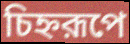
চিহ্নরূপে